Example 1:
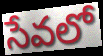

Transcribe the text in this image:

సేవలో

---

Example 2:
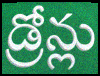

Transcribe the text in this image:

డ్రోన్లు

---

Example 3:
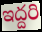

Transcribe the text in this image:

ఇద్దరి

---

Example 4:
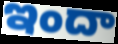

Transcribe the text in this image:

ఇందా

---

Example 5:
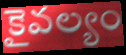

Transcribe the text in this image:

కైవల్యం